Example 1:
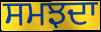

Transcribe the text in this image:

ਸਮਝਦਾ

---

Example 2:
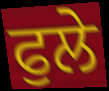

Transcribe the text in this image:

ਫੁਲੇ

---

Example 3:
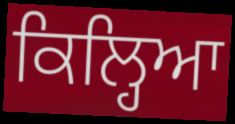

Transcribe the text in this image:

ਕਿਲ੍ਹਿਆ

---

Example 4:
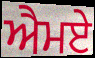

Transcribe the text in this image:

ਐਮਏ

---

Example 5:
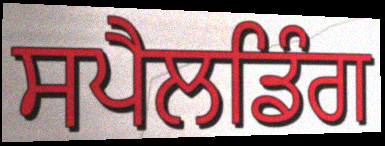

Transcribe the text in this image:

ਸਪੈਲਡਿੰਗ